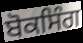
ਬੋਕਸਿੰਗ